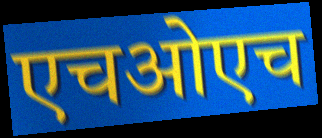
एचओएच